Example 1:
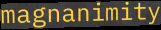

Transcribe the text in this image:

magnanimity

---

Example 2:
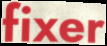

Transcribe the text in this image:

fixer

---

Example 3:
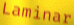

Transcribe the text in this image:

Laminar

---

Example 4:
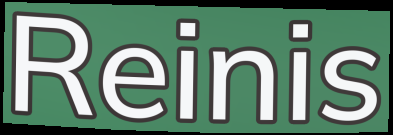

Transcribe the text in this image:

Reinis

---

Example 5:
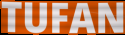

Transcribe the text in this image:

TUFAN